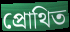
প্ৰোথিত